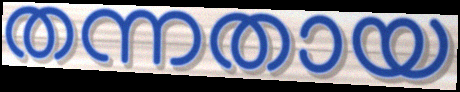
തന്നതായ